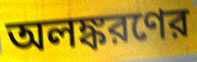
অলঙ্করণের